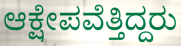
ಆಕ್ಷೇಪವೆತ್ತಿದ್ದರು